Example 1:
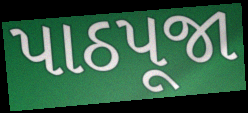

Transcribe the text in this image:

પાઠપૂજા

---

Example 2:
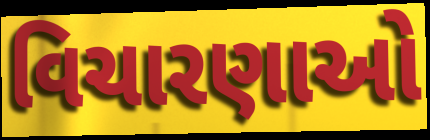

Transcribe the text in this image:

વિચારણાઓ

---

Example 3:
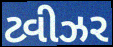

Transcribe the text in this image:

ટ્વીઝર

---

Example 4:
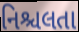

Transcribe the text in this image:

નિશ્ચલતા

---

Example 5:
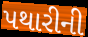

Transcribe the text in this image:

પથારીની